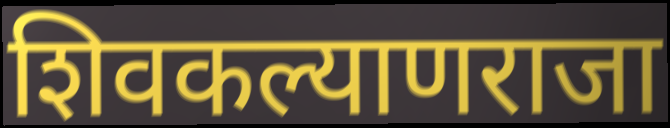
शिवकल्याणराजा